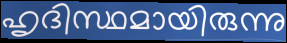
ഹൃദിസ്ഥമായിരുന്നു